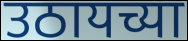
उठायच्या